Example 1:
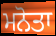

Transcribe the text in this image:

ਮਨੋਤਾ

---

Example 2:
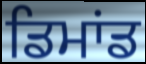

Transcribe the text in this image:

ਡਿਮਾਂਡ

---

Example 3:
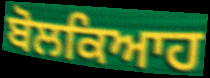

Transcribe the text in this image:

ਬੋਲਕਿਆਹ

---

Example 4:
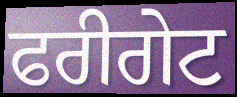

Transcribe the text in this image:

ਫਰੀਗੇਟ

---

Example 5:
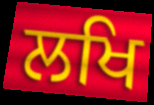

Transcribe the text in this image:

ਲਖਿ